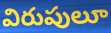
విరుపులూ